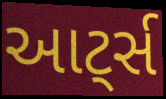
આટ્‌ર્સ